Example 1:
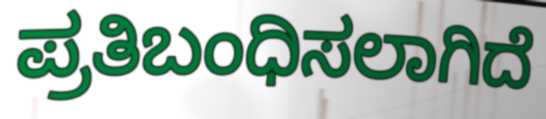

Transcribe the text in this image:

ಪ್ರತಿಬಂಧಿಸಲಾಗಿದೆ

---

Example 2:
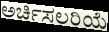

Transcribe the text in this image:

ಅರ್ಚಿಸಲರಿಯೆ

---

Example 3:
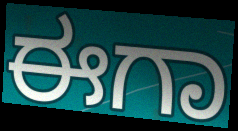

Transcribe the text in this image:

ಈಗಾ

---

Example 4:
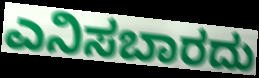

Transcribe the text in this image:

ಎನಿಸಬಾರದು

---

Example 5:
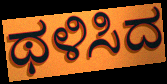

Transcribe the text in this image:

ಥಳಿಸಿದ